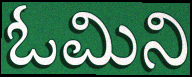
ಓಮಿನಿ